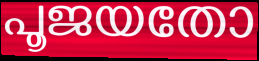
പൂജയതോ